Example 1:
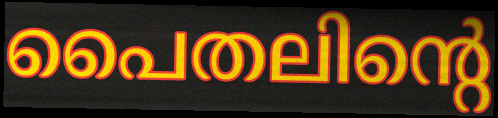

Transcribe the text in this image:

പൈതലിന്റെ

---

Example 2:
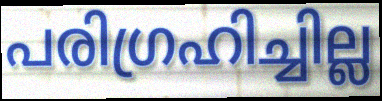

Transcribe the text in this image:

പരിഗ്രഹിച്ചില്ല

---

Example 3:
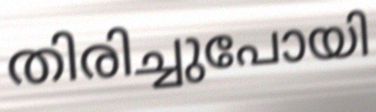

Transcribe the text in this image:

തിരിച്ചുപോയി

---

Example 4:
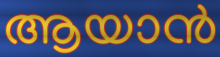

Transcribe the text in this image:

ആയാൻ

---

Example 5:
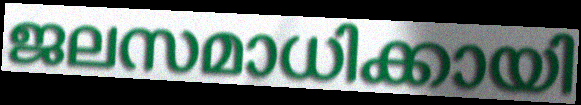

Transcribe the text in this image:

ജലസമാധിക്കായി